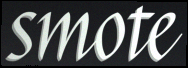
smote